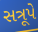
સત્રૂપે